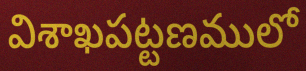
విశాఖపట్టణములో